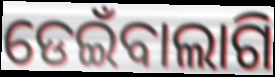
ଡେଇଁବାଲାଗି